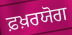
ਫ਼ਖ਼ਰਯੋਗ